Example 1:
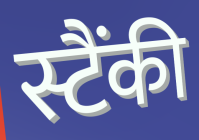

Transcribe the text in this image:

स्टैंकी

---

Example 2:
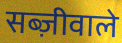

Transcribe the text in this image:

सब्ज़ीवाले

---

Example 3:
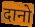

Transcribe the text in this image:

दानो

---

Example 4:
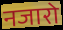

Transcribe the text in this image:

नजारो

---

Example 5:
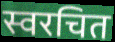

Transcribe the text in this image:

स्वरचित